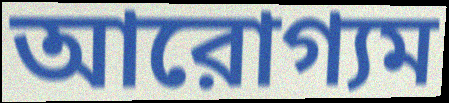
আরোগ্যম